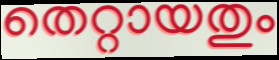
തെറ്റായതും